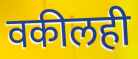
वकीलही